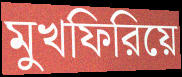
মুখফিরিয়ে